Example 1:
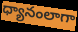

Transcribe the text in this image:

ధ్యానంలాగా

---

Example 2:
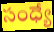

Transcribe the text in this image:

సంధ్యే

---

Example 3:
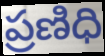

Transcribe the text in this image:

ప్రణిధి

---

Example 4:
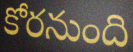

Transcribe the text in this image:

కోరనుంది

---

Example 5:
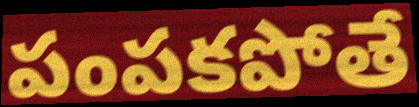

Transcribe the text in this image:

పంపకపోతే